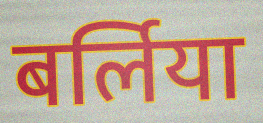
बर्लिया